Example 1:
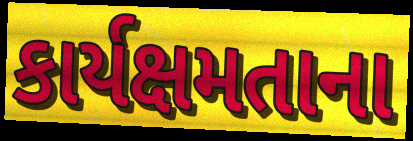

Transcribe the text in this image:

કાર્યક્ષમતાના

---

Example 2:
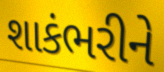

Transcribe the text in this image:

શાકંભરીને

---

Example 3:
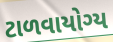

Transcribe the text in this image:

ટાળવાયોગ્ય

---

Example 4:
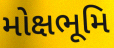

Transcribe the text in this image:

મોક્ષભૂમિ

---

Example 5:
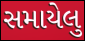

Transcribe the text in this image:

સમાયેલુ